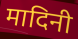
मादिनी